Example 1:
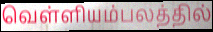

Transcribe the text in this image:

வெள்ளியம்பலத்தில்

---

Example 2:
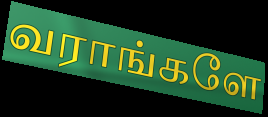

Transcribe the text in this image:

வராங்களே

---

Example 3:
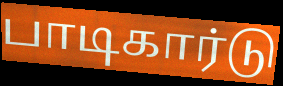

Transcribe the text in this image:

பாடிகார்டு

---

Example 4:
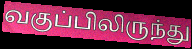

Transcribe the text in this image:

வகுப்பிலிருந்து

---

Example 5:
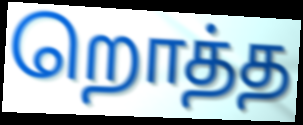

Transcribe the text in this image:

றொத்த